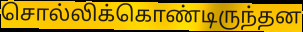
சொல்லிக்கொண்டிருந்தன